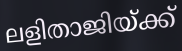
ലളിതാജിയ്ക്ക്